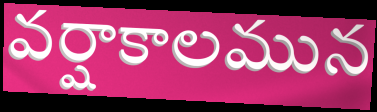
వర్షాకాలమున